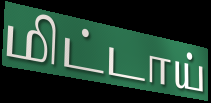
மிட்டாய்